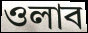
ওলাব